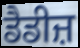
ਡੈਡੀਜ਼